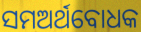
ସମଅର୍ଥବୋଧକ